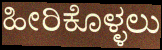
ಹೀರಿಕೊಳ್ಳಲು